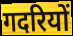
गदरियों